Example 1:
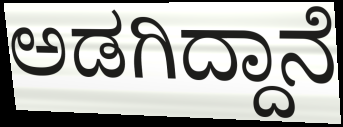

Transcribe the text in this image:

ಅಡಗಿದ್ದಾನೆ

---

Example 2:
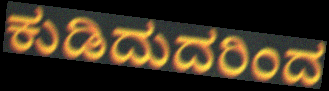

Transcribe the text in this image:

ಕುಡಿದುದರಿಂದ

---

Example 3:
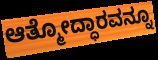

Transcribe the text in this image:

ಆತ್ಮೋದ್ಧಾರವನ್ನೂ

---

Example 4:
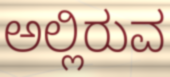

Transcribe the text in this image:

ಅಲ್ಲಿರುವ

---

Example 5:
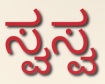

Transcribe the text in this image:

ಸ್ವಸ್ವ